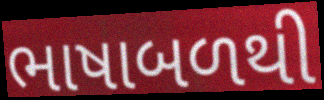
ભાષાબળથી